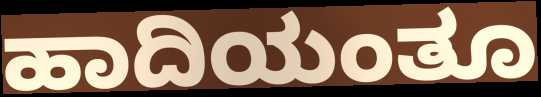
ಹಾದಿಯಂತೂ